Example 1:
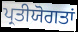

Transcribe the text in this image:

ਪ੍ਰਤੀਯੋਗਤਾਂ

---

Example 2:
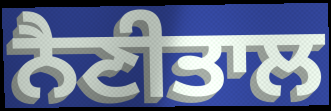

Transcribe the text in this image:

ਨੈਣੀਤਾਲ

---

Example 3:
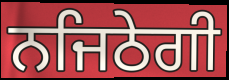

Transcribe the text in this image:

ਨਜਿਠੇਗੀ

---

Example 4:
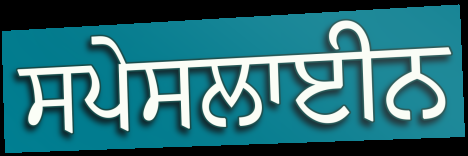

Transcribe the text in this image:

ਸਪੇਸਲਾਈਨ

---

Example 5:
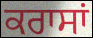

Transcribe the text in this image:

ਕਰਾਸਾਂ